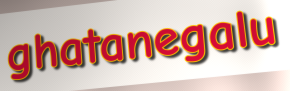
ghatanegalu